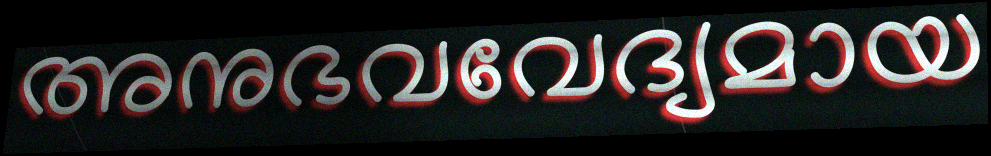
അനുഭവവേദ്യമായ